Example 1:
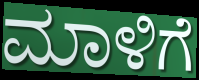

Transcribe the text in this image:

ಮಾಳಿಗೆ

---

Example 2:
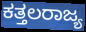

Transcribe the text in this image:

ಕತ್ತಲರಾಜ್ಯ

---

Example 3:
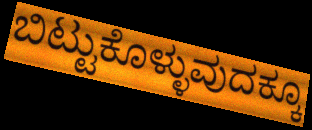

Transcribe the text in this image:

ಬಿಟ್ಟುಕೊಳ್ಳುವುದಕ್ಕೂ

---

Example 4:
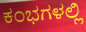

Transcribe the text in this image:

ಕಂಭಗಳಲ್ಲಿ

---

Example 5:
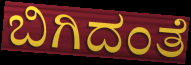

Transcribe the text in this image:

ಬಿಗಿದಂತೆ